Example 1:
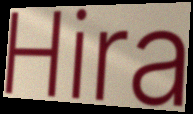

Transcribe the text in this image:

Hira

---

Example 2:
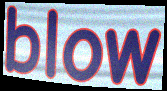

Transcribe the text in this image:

blow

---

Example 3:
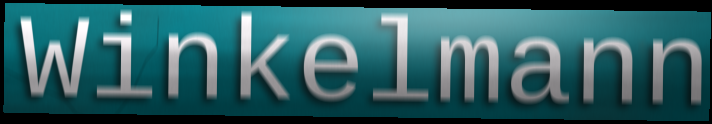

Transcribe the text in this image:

Winkelmann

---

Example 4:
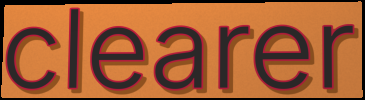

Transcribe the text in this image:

clearer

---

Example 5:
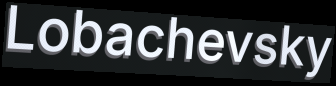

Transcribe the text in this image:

Lobachevsky